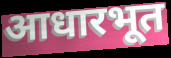
आधारभूत